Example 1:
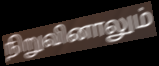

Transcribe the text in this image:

நிறுவினாலும்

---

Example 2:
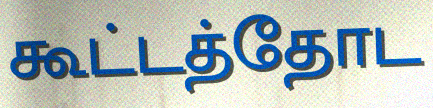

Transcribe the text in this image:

கூட்டத்தோட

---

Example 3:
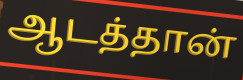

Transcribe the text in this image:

ஆடத்தான்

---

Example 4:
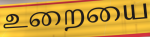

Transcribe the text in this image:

உறையை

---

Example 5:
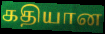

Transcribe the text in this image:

கதியான